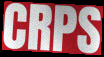
CRPS